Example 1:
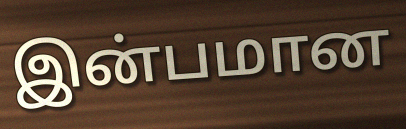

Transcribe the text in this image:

இன்பமான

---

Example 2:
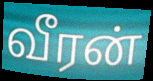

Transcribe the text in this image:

வீரன்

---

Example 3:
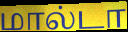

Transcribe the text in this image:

மால்டா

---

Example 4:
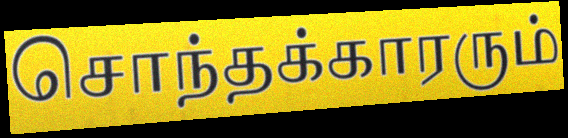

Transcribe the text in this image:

சொந்தக்காரரும்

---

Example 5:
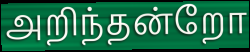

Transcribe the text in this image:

அறிந்தன்றோ